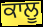
ਕਾਲੂ